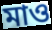
মাও